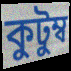
কুটুম্ব